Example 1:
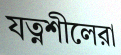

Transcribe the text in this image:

যত্নশীলেরা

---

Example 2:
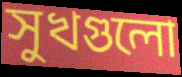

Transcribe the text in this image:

সুখগুলো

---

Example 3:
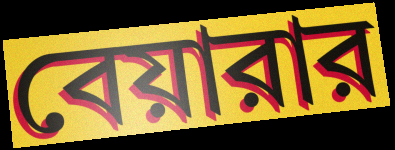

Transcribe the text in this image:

বেয়ারার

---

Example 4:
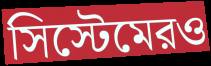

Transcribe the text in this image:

সিস্টেমেরও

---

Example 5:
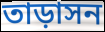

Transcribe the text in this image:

তাড়াসন